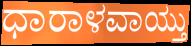
ಧಾರಾಳವಾಯ್ತು